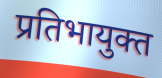
प्रतिभायुक्त